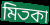
মিতকা